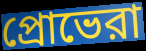
প্রোভেরা